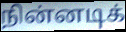
நின்னடிக்